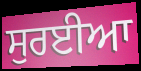
ਸੁਰਈਆ